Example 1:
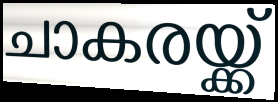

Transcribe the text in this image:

ചാകരയ്ക്ക്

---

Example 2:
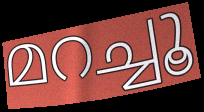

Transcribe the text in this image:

മറച്ചൂ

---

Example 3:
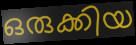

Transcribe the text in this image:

ഒരുക്കിയ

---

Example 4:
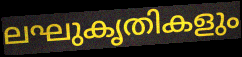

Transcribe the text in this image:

ലഘുകൃതികളും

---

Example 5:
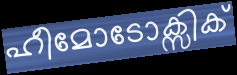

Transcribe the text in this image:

ഹീമോടോക്സിക്